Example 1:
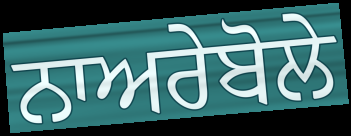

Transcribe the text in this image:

ਨਾਅਰੇਬੋਲੇ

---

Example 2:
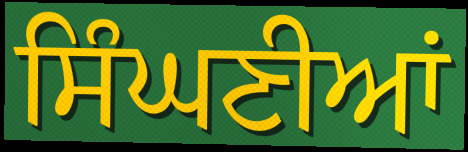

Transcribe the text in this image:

ਸਿੰਘਣੀਆਂ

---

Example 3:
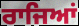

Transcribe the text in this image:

ਰਾਜਿਆਂ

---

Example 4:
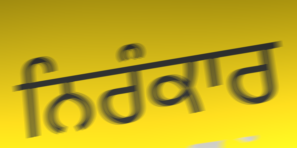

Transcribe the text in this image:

ਨਿਰੰਕਾਰ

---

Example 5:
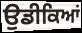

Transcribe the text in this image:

ਉਡੀਕਿਆਂ